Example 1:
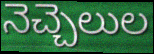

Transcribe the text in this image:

నెచ్చెలుల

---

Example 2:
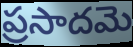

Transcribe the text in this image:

ప్రసాదమె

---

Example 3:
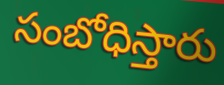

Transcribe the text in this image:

సంబోధిస్తారు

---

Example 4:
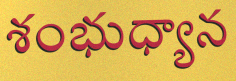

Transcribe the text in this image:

శంభుధ్యాన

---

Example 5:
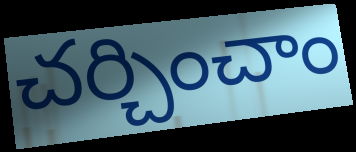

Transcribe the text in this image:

చర్చించాం